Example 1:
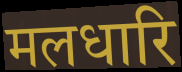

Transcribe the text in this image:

मलधारि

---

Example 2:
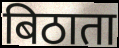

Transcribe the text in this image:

बिठाता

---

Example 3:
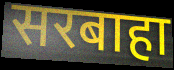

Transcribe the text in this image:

सरबाहा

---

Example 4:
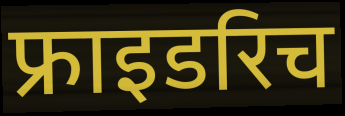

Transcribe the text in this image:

फ्राइडरिच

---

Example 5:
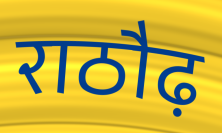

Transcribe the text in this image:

राठौढ़